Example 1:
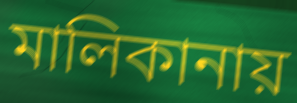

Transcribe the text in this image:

মালিকানায়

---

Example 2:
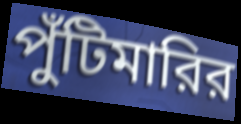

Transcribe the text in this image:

পুঁটিমারির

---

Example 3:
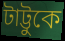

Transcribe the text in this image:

টাট্টুকে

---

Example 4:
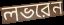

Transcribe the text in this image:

লভরেন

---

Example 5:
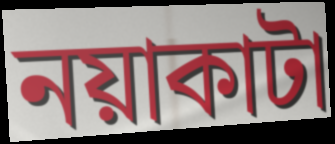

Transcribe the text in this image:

নয়াকাটা